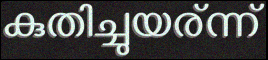
കുതിച്ചുയര്ന്ന്